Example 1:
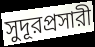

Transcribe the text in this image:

সুদূরপ্রসারী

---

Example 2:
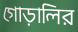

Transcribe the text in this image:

গোড়ালির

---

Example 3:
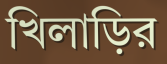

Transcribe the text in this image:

খিলাড়ির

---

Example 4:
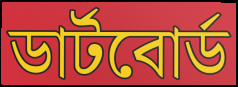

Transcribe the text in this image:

ডার্টবোর্ড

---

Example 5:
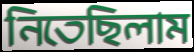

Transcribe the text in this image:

নিতেছিলাম